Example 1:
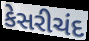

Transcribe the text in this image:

કેસરીચંદ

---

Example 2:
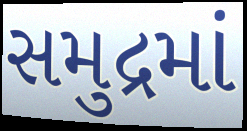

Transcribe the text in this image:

સમુદ્રમાં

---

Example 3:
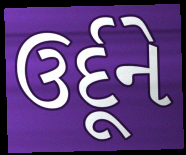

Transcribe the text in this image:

ઉર્દૂને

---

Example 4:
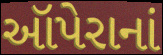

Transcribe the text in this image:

ઑપેરાનાં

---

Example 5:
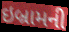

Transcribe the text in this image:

ઇબ્રામની